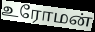
உரோமன்